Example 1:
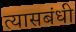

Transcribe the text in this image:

त्यासबंधी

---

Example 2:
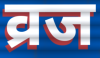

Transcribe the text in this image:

व्रज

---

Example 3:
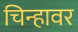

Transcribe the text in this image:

चिन्हावर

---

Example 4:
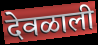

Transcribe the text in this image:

देवळाली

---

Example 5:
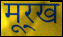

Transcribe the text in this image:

मूर्ख